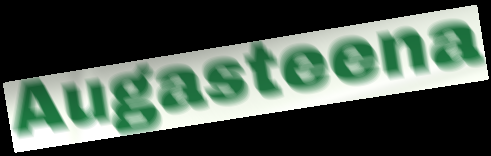
Augasteena